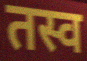
तस्व